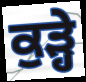
ਕੁੜ੍ਹੇ